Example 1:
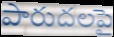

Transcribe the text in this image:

పారుదలపై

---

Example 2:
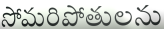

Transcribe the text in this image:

సోమరిపోతులను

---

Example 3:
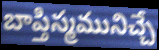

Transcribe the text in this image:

బాప్తిస్మమునిచ్చే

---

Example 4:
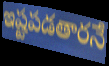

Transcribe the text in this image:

ఇష్టపడతారనే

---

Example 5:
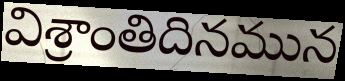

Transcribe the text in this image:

విశ్రాంతిదినమున